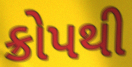
ક્રોપથી